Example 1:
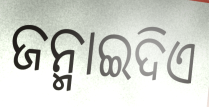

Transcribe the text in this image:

ଜନ୍ମାଇଦିଏ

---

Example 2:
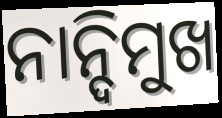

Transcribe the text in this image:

ନାନ୍ଦିମୁଖ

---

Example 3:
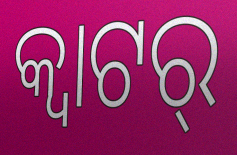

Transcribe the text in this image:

କ୍ୱାଟର୍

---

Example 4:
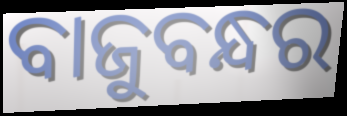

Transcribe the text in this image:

ବାଜୁବନ୍ଧର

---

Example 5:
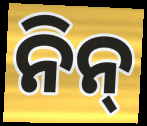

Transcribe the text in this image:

ନିନ୍